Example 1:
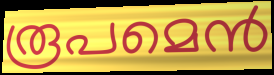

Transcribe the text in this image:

രൂപമെൻ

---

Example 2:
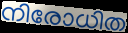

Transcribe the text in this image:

നിരോധിത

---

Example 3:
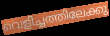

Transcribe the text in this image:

വെളിച്ചത്തിലേക്കു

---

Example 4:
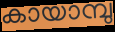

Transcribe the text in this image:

കായാമ്പു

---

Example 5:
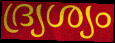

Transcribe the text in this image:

ദ്ര്യശ്യം